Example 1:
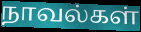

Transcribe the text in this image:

நாவல்கள்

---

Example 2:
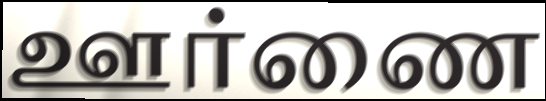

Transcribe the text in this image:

ஊர்ணை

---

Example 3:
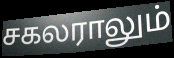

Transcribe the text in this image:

சகலராலும்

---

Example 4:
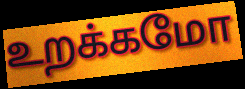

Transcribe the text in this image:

உறக்கமோ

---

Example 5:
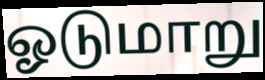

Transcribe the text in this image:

ஓடுமாறு